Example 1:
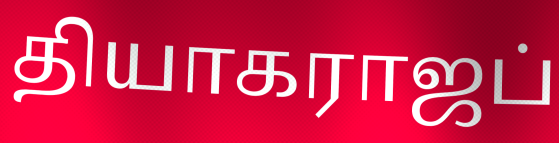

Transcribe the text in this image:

தியாகராஜப்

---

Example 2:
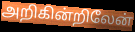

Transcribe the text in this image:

அறிகின்றிலேன்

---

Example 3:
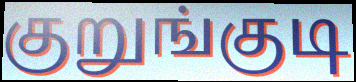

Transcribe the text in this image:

குறுங்குடி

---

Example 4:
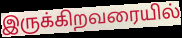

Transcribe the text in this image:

இருக்கிறவரையில்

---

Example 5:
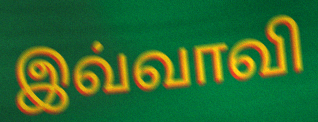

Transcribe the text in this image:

இவ்வாவி